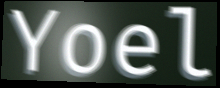
Yoel